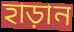
হাড়ান